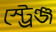
স্ট্রেঞ্জ